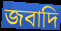
জবাদি